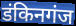
डंकिनगंज